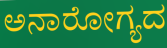
ಅನಾರೋಗ್ಯದ